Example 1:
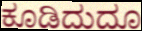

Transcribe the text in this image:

ಕೂಡಿದುದೂ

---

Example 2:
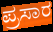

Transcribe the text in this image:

ಪ್ರಸಾರ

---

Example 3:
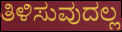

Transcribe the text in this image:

ತಿಳಿಸುವುದಲ್ಲ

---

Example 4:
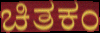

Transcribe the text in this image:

ಚಿತಕಂ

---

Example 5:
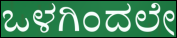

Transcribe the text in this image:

ಒಳಗಿಂದಲೇ